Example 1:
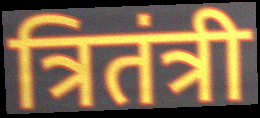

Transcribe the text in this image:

त्रितंत्री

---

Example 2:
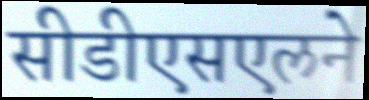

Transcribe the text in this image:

सीडीएसएलने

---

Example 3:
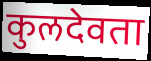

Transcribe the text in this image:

कुलदेवता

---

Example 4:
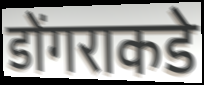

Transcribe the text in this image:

डोंगराकडे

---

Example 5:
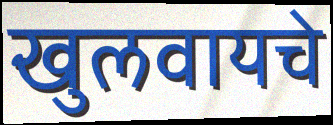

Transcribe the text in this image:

खुलवायचे